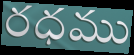
రధము